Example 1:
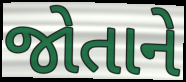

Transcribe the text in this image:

જોતાને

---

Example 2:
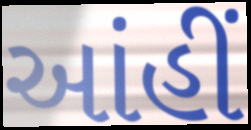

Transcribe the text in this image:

આંહીં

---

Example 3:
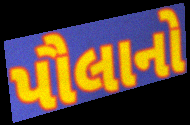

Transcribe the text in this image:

પૌલાનો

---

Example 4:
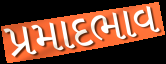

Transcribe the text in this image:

પ્રમાદભાવ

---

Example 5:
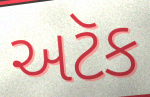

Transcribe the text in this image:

અટૅક